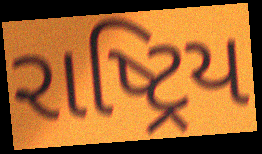
રાષ્ટ્રિય